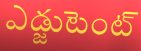
ఎడ్జుటెంట్